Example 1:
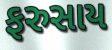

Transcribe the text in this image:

ફરુસાય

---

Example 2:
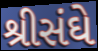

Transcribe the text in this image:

શ્રીસંઘે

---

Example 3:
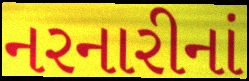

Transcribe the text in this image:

નરનારીનાં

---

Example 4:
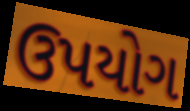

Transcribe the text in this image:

ઉપયોગ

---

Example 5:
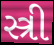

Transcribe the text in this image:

સ્ત્રી